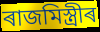
ৰাজমিস্ত্ৰীৰ